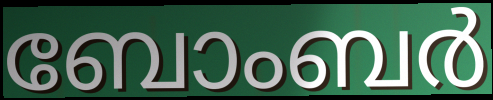
ബോംബർ